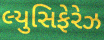
લ્યુસિફેરેઝ